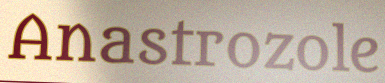
Anastrozole